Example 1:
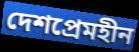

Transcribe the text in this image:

দেশপ্রেমহীন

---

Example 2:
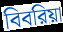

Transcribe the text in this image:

বিবরিয়া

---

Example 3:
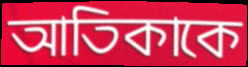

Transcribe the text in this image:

আতিকাকে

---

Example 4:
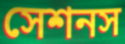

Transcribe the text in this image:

সেশনস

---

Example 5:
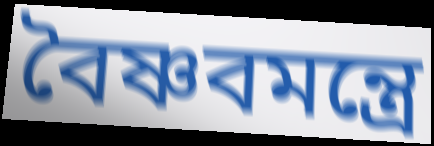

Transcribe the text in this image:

বৈষ্ণবমন্ত্রে